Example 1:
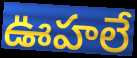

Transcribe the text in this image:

ఊహలే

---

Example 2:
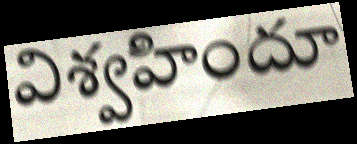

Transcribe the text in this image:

విశ్వహిందూ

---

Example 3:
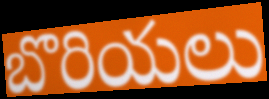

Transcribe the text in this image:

బొరియలు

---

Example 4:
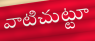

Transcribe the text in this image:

వాటిచుట్టూ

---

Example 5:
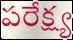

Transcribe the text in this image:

పరేక్ష్య